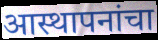
आस्थापनांचा